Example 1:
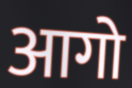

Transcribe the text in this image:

आगो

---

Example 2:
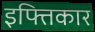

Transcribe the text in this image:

इफ्तिकार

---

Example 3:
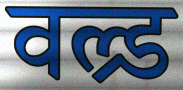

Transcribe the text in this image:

वल्र्ड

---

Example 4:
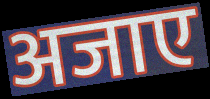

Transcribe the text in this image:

अजाए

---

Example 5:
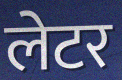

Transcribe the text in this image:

लेटर